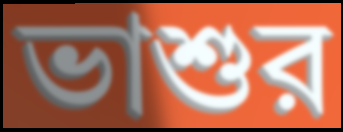
ভাশুর